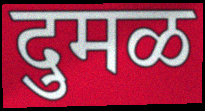
दुमळ